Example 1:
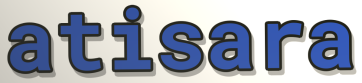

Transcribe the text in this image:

atisara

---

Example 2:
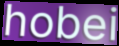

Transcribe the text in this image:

hobei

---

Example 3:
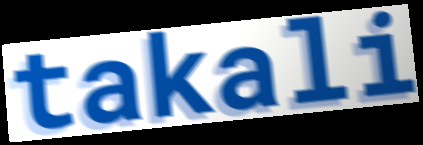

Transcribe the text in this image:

takali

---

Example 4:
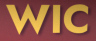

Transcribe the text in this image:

WIC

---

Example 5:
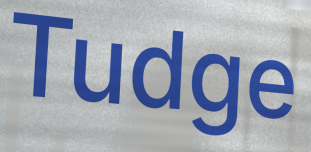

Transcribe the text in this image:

Tudge